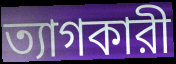
ত্যাগকারী